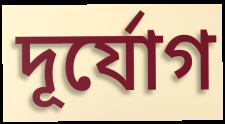
দূর্যোগ